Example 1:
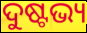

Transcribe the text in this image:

ଦୁଷ୍ଟଭ୍ୟ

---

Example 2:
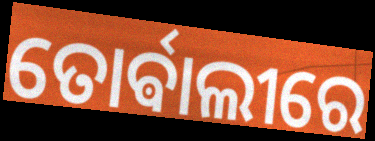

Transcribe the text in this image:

ତୋର୍ଵାଲୀରେ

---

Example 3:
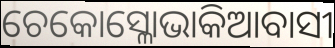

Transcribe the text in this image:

ଚେକୋସ୍ଳୋଭାକିଆବାସୀ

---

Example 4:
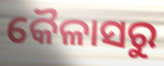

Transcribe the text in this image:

କୈଳାସରୁ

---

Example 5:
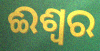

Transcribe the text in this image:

ଈଶ୍ଵର